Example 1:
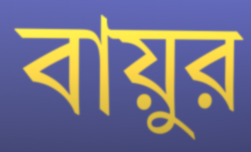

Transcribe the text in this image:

বায়ুর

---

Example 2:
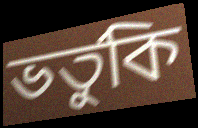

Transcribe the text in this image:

ভর্তুকি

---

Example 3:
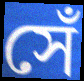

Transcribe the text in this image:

সেঁ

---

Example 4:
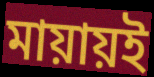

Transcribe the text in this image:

মায়ায়ই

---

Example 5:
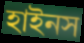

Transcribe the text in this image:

হাইনস